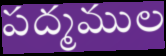
పద్మముల